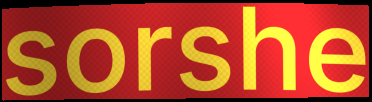
sorshe